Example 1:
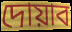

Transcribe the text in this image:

দোয়াব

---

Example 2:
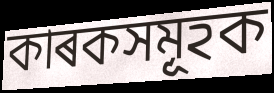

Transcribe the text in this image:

কাৰকসমূহক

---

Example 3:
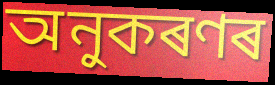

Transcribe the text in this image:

অনুকৰণৰ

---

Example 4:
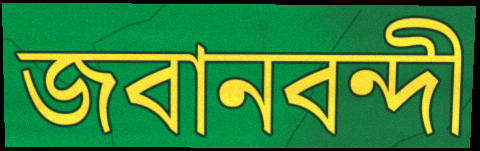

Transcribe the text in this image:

জবানবন্দী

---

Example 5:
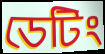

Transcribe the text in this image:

ডেটিং